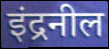
इंद्रनील